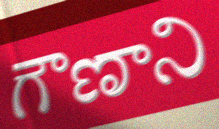
గౌణాని